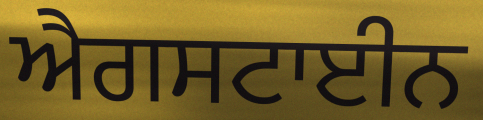
ਐਗਸਟਾਈਨ